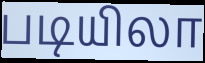
படியிலா